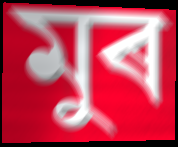
মুৰ